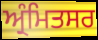
ਅ੍ਰੰਮਿਤਸਰ